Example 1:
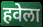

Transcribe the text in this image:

हवेला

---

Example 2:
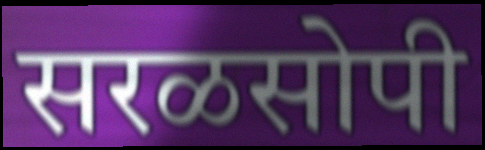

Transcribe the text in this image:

सरळसोपी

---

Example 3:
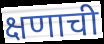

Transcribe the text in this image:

क्षणाची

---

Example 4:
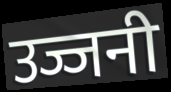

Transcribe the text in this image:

उज्जनी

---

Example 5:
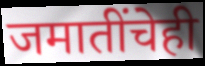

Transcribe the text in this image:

जमातींचेही